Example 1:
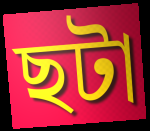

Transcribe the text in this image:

ছটা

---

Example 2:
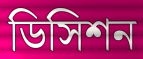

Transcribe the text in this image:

ডিসিশন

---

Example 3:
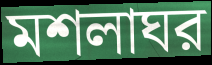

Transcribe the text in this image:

মশলাঘর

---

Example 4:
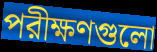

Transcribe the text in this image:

পরীক্ষণগুলো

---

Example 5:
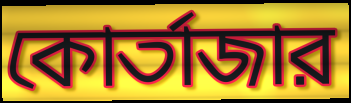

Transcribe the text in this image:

কোর্তাজার